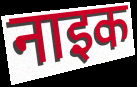
नाइक